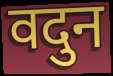
वदुन